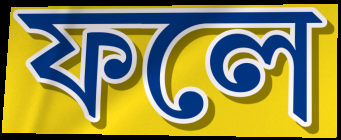
ফলে